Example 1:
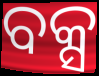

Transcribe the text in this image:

ବକ୍ସ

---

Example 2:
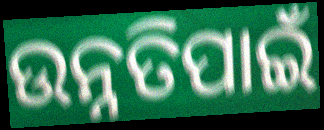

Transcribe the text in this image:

ଉନ୍ନତିପାଇଁ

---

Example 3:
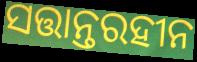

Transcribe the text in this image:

ସତ୍ତାନ୍ତରହୀନ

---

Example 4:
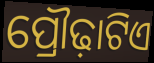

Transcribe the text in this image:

ପ୍ରୌଢ଼ାଟିଏ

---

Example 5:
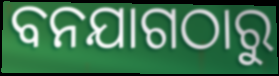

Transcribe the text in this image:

ବନଯାଗଠାରୁ